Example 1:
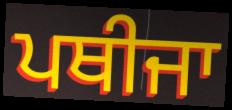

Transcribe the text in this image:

ਪਥੀਜਾ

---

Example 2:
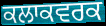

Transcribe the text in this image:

ਕਲਾਕਵਰਕ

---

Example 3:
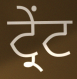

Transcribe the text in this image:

ਟ੍ਰੇਂਟ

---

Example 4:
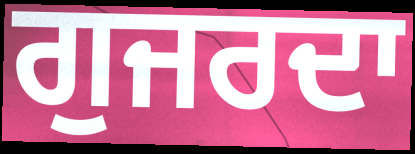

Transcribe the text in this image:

ਗੁਜਰਦਾ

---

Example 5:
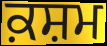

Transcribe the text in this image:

ਕ਼ਸ਼ਮ